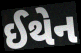
ઈથેન